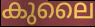
കുലൈ